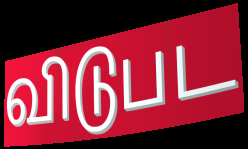
விடுபட